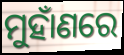
ମୁହାଁଣରେ